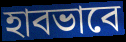
হাবভাবে